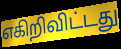
எகிறிவிட்டது